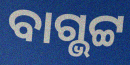
ବାଗ୍ଭଟ୍ଟ